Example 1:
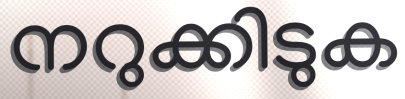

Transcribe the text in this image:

നറുക്കിടുക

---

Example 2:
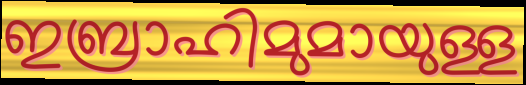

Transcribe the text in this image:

ഇബ്രാഹിമുമായുള്ള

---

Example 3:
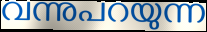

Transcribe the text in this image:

വന്നുപറയുന്ന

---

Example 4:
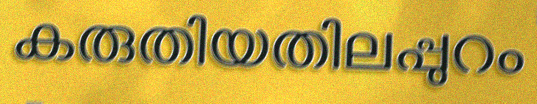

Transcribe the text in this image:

കരുതിയതിലപ്പുറം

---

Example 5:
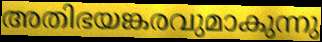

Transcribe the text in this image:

അതിഭയങ്കരവുമാകുന്നു